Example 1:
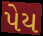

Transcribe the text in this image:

પેય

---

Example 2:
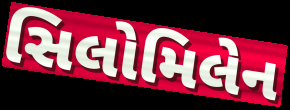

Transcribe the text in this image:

સિલોમિલેન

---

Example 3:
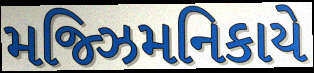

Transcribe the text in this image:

મજ્ઝિમનિકાયે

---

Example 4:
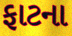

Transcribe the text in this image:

ફાટના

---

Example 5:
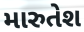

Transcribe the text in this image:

મારુતેશ